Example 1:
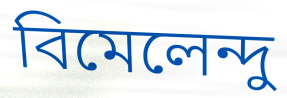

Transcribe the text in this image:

বিমেলেন্দু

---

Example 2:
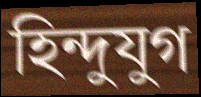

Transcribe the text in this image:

হিন্দুযুগ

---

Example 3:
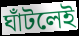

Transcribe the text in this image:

ঘাঁটলেই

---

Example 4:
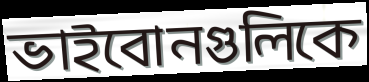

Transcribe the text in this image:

ভাইবোনগুলিকে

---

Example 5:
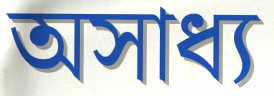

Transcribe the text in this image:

অসাধ্য